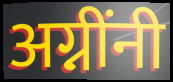
अग्नींनी